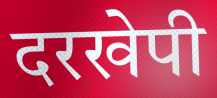
दरखेपी